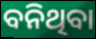
ବନିଥିବା